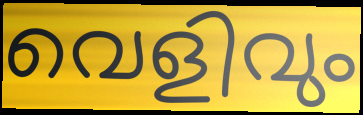
വെളിവും